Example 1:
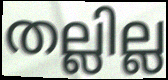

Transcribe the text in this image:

തല്ലില്ല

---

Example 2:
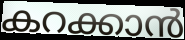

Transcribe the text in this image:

കറക്കാൻ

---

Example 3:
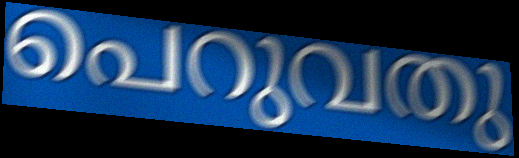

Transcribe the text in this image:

പെറുവതു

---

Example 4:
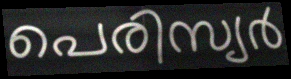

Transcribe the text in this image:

പെരിസ്യർ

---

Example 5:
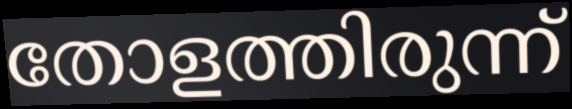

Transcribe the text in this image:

തോളത്തിരുന്ന്